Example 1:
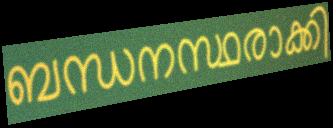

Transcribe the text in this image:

ബന്ധനസ്ഥരാക്കി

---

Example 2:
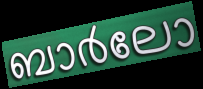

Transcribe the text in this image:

ബാർലോ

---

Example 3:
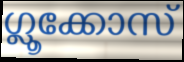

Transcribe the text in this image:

ഗ്ലൂക്കോസ്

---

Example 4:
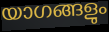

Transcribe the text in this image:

യാഗങ്ങളും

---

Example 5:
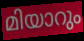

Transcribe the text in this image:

മിയാറും